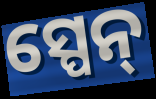
ସ୍ପେନ୍